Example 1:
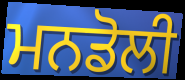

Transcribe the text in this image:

ਮਨਡੋਲੀ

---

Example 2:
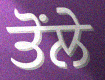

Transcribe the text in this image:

ਤੋਂਲੇ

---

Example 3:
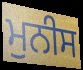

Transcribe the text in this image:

ਮੁਨੀਸ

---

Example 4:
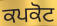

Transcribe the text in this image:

ਕਪਕੋਟ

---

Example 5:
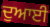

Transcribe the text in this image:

ਦੁਆਈ